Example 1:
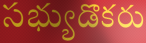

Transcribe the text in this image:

సభ్యుడొకరు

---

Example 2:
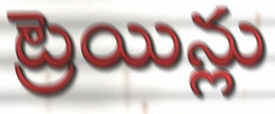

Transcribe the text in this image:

ట్రెయిన్లు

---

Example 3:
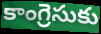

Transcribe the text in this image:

కాంగ్రెసుకు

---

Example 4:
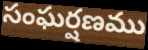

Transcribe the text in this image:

సంఘర్షణము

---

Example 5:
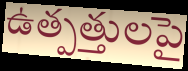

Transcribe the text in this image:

ఉత్పత్తులపై